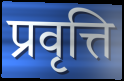
प्रवृत्ति